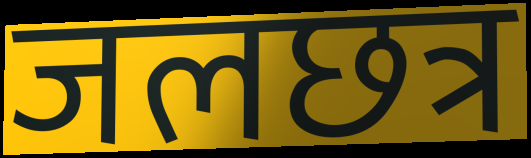
जलछत्र